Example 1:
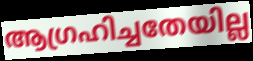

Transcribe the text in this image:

ആഗ്രഹിച്ചതേയില്ല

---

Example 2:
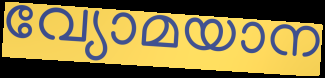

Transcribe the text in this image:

വ്യോമയാന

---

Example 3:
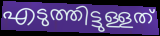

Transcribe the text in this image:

എടുത്തിട്ടുള്ളത്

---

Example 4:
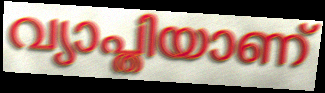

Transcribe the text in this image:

വ്യാപ്തിയാണ്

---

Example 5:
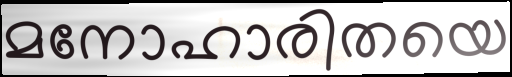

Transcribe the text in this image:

മനോഹാരിതയെ